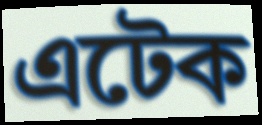
এটেক